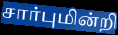
சார்புமின்றி